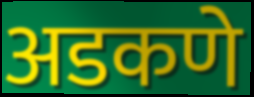
अडकणे